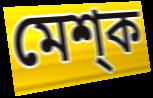
মেশ্ক